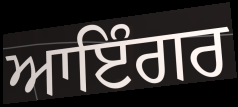
ਆਇੰਗਰ